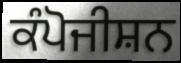
ਕੰਪੋਜੀਸ਼ਨ